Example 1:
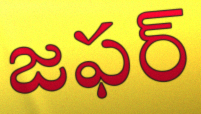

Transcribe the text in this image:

జఫర్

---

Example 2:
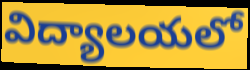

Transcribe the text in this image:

విద్యాలయలో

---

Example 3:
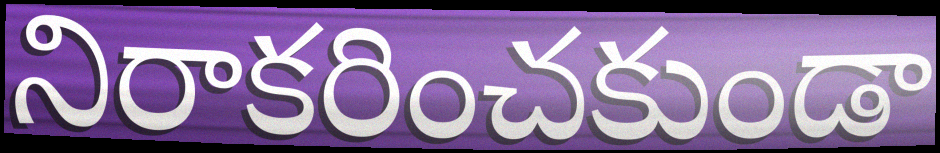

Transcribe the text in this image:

నిరాకరించకుండా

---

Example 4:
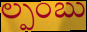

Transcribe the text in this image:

ల్పంబు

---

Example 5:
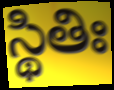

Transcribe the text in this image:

స్థితిః